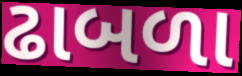
ઢાબળા